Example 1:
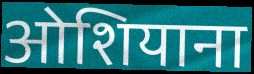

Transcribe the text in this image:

ओशियाना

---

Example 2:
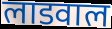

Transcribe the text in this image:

लाडवाल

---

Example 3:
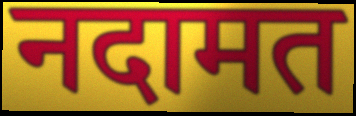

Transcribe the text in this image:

नदामत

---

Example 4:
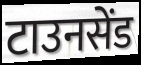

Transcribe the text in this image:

टाउनसेंड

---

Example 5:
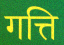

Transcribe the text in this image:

गत्ति